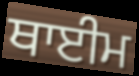
ਥਾਈਮ